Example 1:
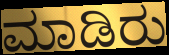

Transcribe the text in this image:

ಮಾಡಿರು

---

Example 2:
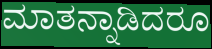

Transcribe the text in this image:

ಮಾತನ್ನಾಡಿದರೂ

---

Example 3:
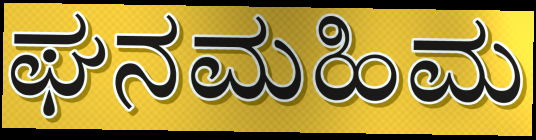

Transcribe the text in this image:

ಘನಮಹಿಮ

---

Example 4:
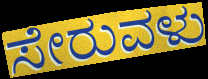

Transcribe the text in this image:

ಸೇರುವಳು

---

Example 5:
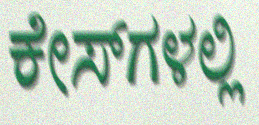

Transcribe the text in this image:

ಕೇಸ್‌ಗಳಲ್ಲಿ